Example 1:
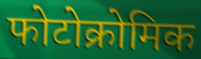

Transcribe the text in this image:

फोटोक्रोमिक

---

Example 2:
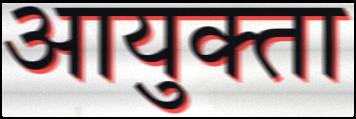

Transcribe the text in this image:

आयुक्ता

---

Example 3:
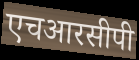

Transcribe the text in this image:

एचआरसीपी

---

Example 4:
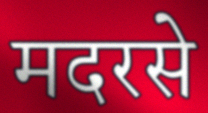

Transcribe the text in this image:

मदरसे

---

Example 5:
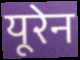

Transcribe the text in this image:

यूरेन